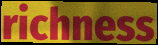
richness